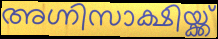
അഗ്നിസാക്ഷിയ്ക്ക്